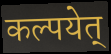
कल्पयेत्